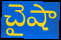
చైషా